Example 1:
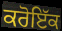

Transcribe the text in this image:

ਕਰੋਇੱਕ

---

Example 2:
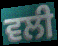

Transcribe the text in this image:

ਵਲੀ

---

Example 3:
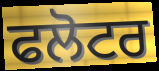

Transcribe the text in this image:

ਫਲੋਟਰ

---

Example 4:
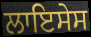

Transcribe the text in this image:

ਲਾਇਸੇਸ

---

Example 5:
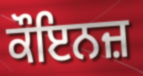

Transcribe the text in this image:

ਕੌਇਨਜ਼